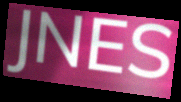
JNES